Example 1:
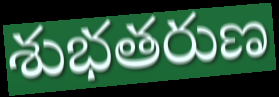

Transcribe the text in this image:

శుభతరుణ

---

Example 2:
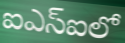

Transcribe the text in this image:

ఐఎస్ఐలో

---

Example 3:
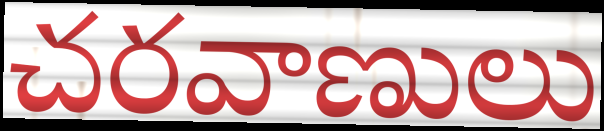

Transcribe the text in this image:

చరవాణులు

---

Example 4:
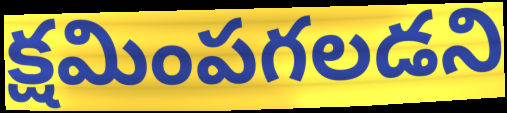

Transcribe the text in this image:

క్షమింపగలడని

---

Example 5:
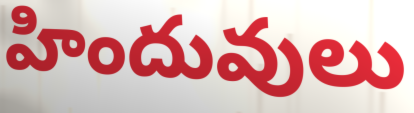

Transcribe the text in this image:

హిందువులు